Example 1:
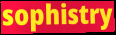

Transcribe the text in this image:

sophistry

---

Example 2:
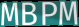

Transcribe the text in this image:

MBPM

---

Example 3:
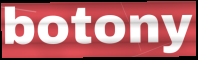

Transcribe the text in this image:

botony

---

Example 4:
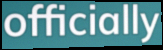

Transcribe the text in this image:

officially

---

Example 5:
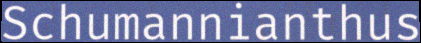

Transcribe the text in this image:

Schumannianthus